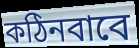
কঠিনবাবে